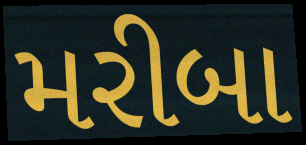
મરીબા